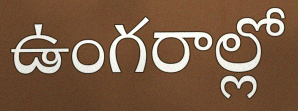
ఉంగరాల్లో